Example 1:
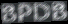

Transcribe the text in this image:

BPDB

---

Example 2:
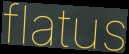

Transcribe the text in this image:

flatus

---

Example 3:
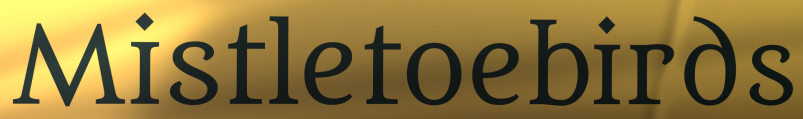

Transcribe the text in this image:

Mistletoebirds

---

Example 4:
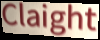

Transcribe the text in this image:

Claight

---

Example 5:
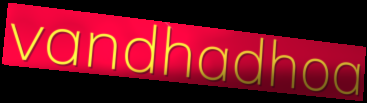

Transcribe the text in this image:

vandhadhoa